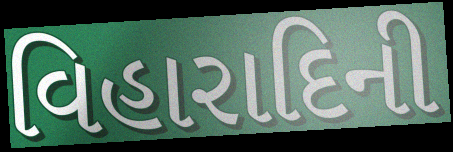
વિહારાદિની